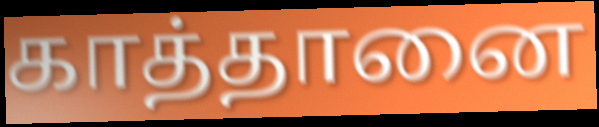
காத்தானை